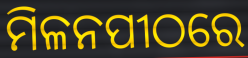
ମିଳନପୀଠରେ